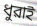
ধুৱাই